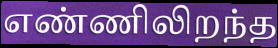
எண்ணிலிறந்த